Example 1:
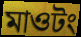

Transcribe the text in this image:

মাওটং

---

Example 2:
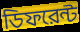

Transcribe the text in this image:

ডিফরেন্ট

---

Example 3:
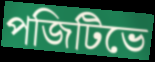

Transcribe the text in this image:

পজিটিভে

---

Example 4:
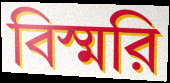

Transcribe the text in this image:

বিস্মরি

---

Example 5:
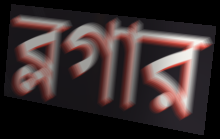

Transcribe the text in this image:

ব্লগার